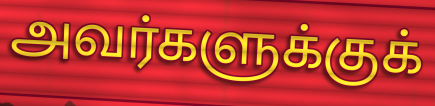
அவர்களுக்குக்